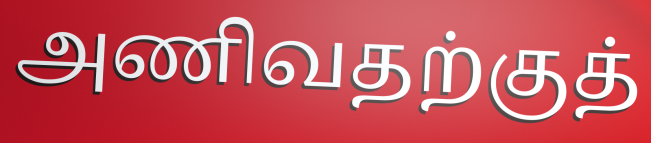
அணிவதற்குத்